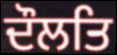
ਦੌਲਤਿ